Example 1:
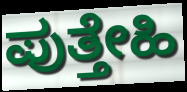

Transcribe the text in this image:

ಪುತ್ತೇಹಿ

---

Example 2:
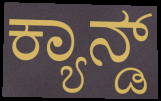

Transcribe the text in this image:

ಕ್ಯಾನ್ಡ್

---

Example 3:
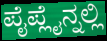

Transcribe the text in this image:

ಪೈಪ್ಲೈನ್ನಲ್ಲಿ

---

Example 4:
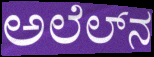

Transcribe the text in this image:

ಅಲೆಲ್‌ನ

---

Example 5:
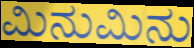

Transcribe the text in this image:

ಮಿನುಮಿನು